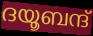
ദയൂബന്ദ്